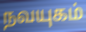
நவயுகம்